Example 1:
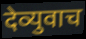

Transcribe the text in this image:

देव्युवाच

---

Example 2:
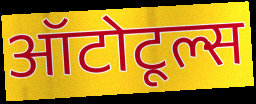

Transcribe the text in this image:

ऑटोटूल्स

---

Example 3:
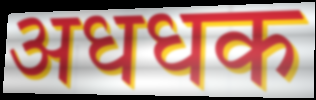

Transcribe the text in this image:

अधधक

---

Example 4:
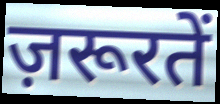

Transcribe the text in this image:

ज़रूरतें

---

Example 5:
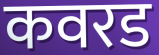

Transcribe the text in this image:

कवरड